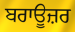
ਬਰਾਊਜ਼ਰ